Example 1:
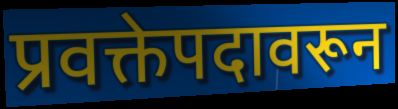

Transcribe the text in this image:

प्रवक्तेपदावरून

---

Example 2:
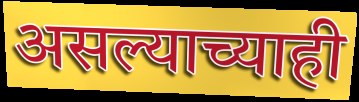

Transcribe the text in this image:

असल्याच्याही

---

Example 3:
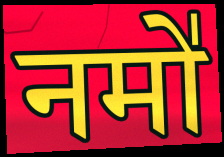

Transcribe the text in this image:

नमो॑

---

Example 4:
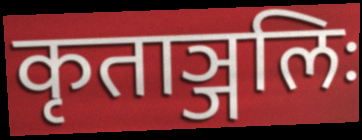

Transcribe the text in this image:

कृताञ्जलिः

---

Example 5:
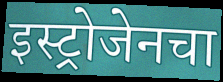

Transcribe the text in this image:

इस्ट्रोजेनचा